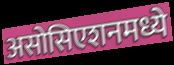
असोसिएशनमध्ये